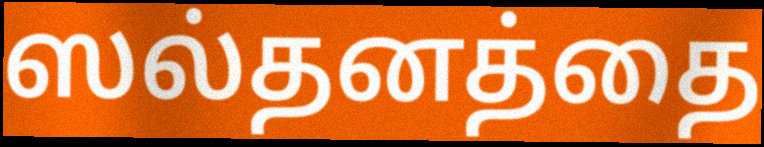
ஸல்தனத்தை